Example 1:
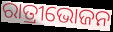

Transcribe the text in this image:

ରାତ୍ରୀଭୋଜନ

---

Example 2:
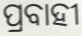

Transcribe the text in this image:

ପ୍ରବାହୀ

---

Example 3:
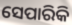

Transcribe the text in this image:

ସେପାରିକି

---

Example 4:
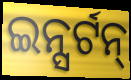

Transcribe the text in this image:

ଇନ୍ସର୍ଟନ୍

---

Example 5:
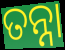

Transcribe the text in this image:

ତନ୍ନା